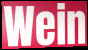
Wein